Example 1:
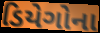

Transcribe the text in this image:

ડિયેગોના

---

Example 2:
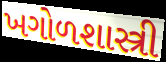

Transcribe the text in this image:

ખગોળશાસ્ત્રી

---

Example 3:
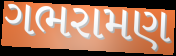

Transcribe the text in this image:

ગભરામણ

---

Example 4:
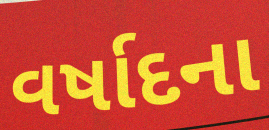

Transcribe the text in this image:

વર્ષાદના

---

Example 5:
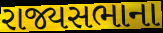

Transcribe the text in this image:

રાજ્યસભાના